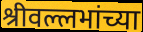
श्रीवल्लभांच्या